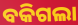
ବକିଗଲା